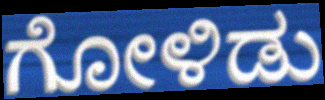
ಗೋಳಿಡು